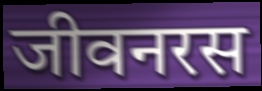
जीवनरस